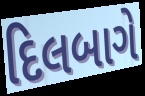
દિલબાગે